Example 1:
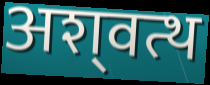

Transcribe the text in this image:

अश्वत्थ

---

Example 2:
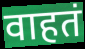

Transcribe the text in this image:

वाहतं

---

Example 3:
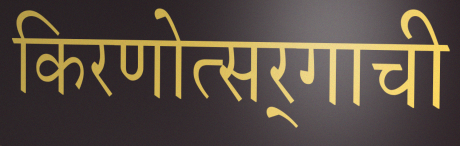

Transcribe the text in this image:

किरणोत्सर्गाची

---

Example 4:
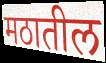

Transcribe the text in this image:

मठातील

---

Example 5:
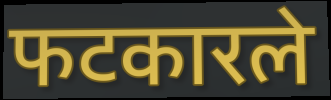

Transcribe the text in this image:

फटकारले